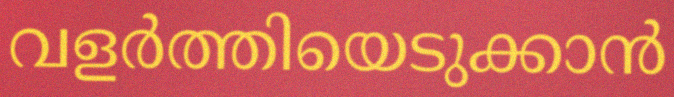
വളർത്തിയെടുക്കാൻ